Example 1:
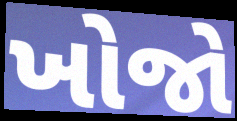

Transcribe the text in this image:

ખોજો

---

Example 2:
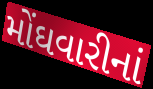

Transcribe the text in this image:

મોંઘવારીનાં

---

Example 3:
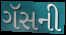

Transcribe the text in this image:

ગૅસની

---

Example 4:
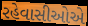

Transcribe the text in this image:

રહેવાસીઓએ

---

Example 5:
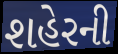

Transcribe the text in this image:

શહેરની